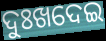
ଦୁଃଖଦେଇ